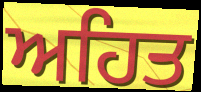
ਅਹਿਤ